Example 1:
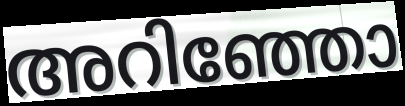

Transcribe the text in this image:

അറിഞ്ഞോ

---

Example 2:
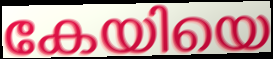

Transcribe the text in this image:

കേയിയെ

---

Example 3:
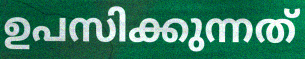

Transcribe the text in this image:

ഉപസിക്കുന്നത്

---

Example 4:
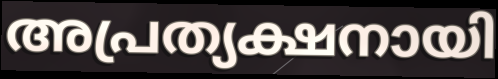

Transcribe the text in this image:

അപ്രത്യക്ഷനായി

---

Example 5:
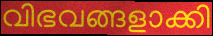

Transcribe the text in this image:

വിഭവങ്ങളാക്കി